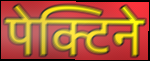
पेक्टिने